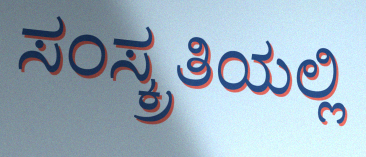
ಸಂಸ್ಕ್ರತಿಯಲ್ಲಿ